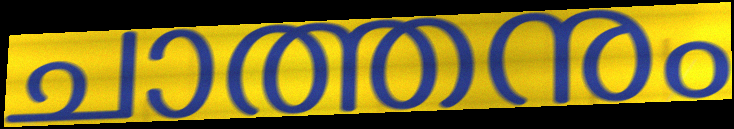
ചാത്തനും